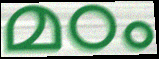
മഠം